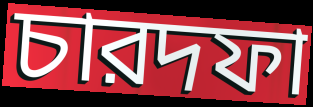
চারদফা